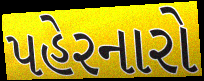
પહેરનારો